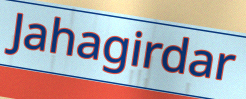
Jahagirdar